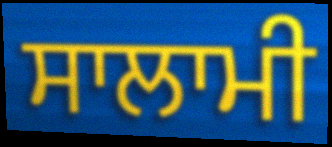
ਸਾਲਾਮੀ